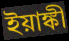
ইয়াঙ্কী